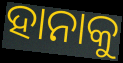
ହାନାକୁ